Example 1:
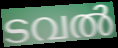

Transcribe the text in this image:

ടവൽ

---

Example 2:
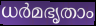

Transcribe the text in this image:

ധർമഭൃതാം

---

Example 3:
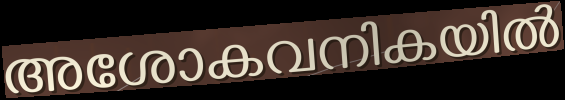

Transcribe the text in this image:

അശോകവനികയിൽ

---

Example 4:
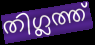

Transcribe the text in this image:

തിഗ്ലത്ത്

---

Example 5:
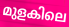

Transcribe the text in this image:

മുളകിലെ